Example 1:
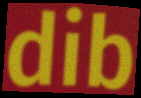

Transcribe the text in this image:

dib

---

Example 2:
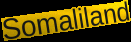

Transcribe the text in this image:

Somaliland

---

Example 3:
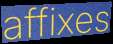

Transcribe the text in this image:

affixes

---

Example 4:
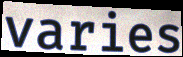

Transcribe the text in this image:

varies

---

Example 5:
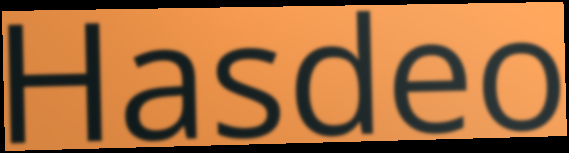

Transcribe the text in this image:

Hasdeo